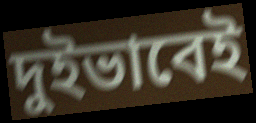
দুইভাবেই